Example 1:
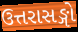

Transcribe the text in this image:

ઉત્તરાસઙ્ગો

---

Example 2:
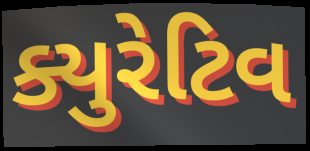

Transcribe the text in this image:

ક્યુરેટિવ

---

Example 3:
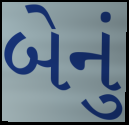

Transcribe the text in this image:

બેનું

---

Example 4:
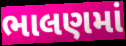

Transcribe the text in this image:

ભાલણમાં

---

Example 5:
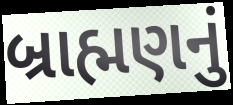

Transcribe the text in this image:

બ્રાહ્મણનું